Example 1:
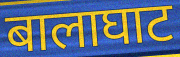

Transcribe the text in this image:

बालाघाट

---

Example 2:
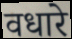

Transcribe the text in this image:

वधारे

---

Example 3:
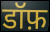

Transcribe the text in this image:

डॉफ़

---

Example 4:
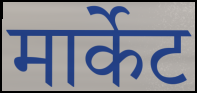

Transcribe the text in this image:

मार्केट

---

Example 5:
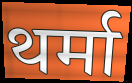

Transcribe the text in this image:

थर्मा